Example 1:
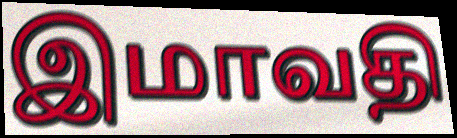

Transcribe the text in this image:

இமாவதி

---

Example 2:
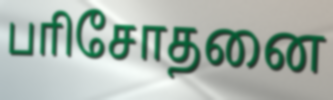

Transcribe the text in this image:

பரிசோதனை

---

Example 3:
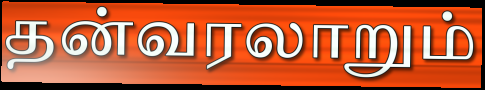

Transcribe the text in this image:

தன்வரலாறும்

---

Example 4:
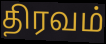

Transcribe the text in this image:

திரவம்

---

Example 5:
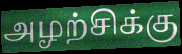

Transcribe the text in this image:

அழற்சிக்கு